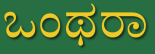
ಒಂಥರಾ